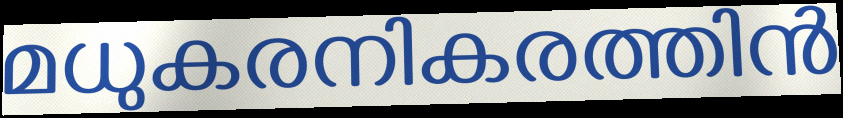
മധുകരനികരത്തിൻ